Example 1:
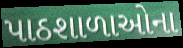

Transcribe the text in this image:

પાઠશાળાઓના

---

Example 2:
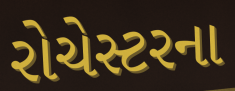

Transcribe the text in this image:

રોચેસ્ટરના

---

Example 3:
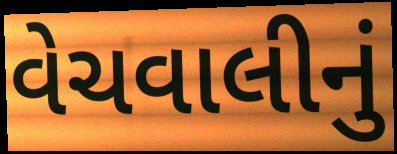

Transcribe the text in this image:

વેચવાલીનું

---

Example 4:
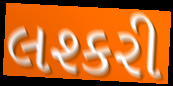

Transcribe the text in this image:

લશ્કરી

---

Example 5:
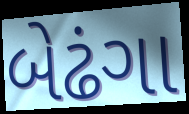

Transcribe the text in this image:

બેઢંગા